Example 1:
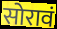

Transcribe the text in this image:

सोरावं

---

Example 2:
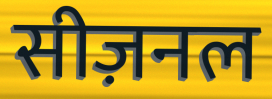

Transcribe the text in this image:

सीज़नल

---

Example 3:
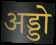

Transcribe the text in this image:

अड्डो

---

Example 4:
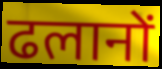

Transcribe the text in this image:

ढलानों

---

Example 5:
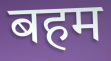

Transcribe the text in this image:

बहम